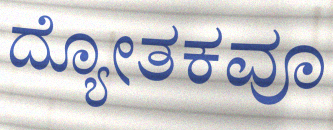
ದ್ಯೋತಕವೂ